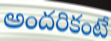
అందరికంటే